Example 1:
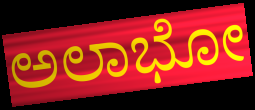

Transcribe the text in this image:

ಅಲಾಭೋ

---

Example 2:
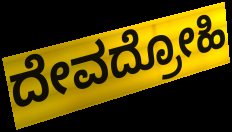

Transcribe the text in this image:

ದೇವದ್ರೋಹಿ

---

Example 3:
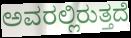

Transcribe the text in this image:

ಅವರಲ್ಲಿರುತ್ತದೆ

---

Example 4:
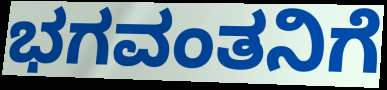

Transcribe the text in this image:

ಭಗವಂತನಿಗೆ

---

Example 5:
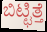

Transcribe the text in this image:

ಬಿಟ್ಟಿತ್ತೆ